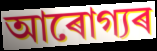
আৰোগ্যৰ